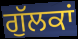
ਗੁੱਲਕਾਂ